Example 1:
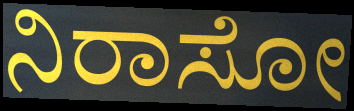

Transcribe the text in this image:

ನಿರಾಸೋ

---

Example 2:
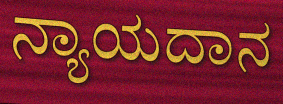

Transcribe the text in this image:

ನ್ಯಾಯದಾನ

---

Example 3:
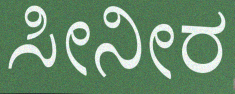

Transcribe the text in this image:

ಸೀನೀರ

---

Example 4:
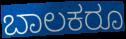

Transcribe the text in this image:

ಬಾಲಕರೂ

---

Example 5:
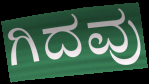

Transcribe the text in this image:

ಗಿದವು